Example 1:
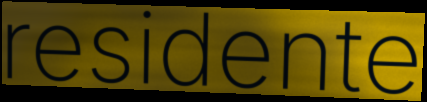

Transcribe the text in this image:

residente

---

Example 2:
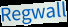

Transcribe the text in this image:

Regwall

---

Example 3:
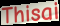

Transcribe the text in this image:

Thisai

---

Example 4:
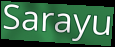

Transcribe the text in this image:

Sarayu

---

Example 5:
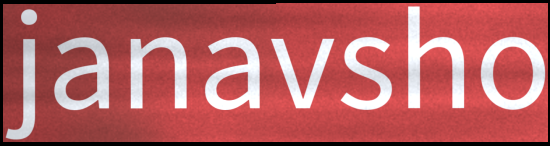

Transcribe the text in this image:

janavsho